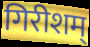
गिरीशम्